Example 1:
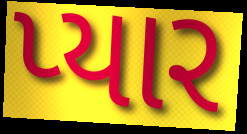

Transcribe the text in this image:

પ્યાર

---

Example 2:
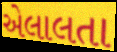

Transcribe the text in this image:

એલાલતા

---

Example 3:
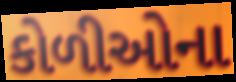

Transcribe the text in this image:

કોળીઓના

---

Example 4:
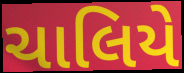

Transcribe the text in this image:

ચાલિયે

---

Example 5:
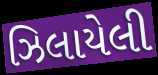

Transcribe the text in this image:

ઝિલાયેલી